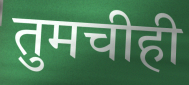
तुमचीही